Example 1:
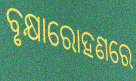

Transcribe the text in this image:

ବୃକ୍ଷାରୋହଣରେ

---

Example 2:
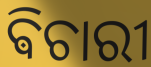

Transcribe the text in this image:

ଵିଚାରୀ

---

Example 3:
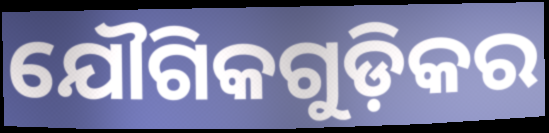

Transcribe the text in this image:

ଯୌଗିକଗୁଡ଼ିକର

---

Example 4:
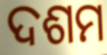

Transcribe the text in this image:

ଦଶମ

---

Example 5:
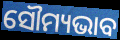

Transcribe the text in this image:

ସୌମ୍ୟଭାବ